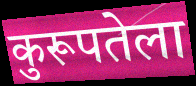
कुरूपतेला